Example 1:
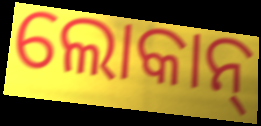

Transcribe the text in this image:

ଲୋକାନ୍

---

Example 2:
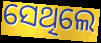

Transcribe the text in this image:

ସେଥିଲେ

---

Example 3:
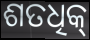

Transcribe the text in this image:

ଶତଧିକ୍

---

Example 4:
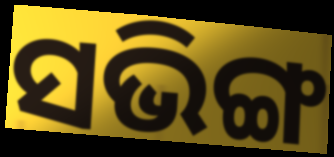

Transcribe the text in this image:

ସଭିଙ୍ଗ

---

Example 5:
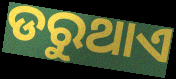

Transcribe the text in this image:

ଡରୁଥାଏ